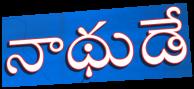
నాథుడే